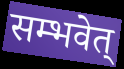
सम्भवेत्